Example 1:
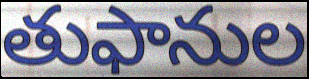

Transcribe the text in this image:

తుఫానుల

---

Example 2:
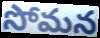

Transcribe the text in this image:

సోమన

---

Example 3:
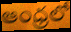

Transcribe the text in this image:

ఆంధ్రలో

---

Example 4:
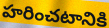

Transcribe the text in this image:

హరించటానికి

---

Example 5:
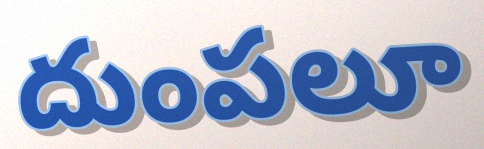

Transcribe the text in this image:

దుంపలూ